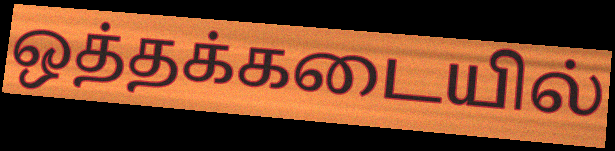
ஒத்தக்கடையில்